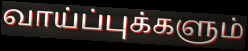
வாய்ப்புக்களும்